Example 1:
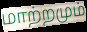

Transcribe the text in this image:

மாற்றமும்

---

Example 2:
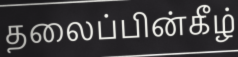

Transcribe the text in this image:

தலைப்பின்கீழ்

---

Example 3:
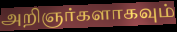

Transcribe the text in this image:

அறிஞர்களாகவும்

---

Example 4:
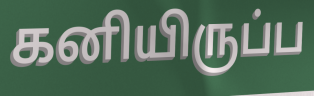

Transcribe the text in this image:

கனியிருப்ப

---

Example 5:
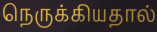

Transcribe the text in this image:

நெருக்கியதால்